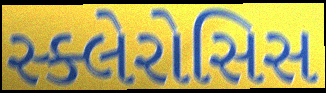
સ્ક્લેરોસિસ